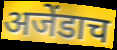
अजेंडाच